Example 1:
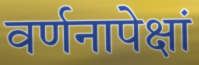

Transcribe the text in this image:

वर्णनापेक्षां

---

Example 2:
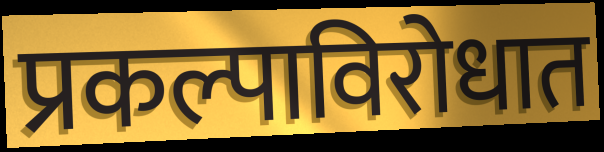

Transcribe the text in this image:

प्रकल्पाविरोधात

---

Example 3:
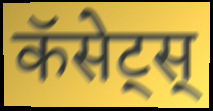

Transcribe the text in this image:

कॅसेट्स्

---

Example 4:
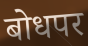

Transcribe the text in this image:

बोधपर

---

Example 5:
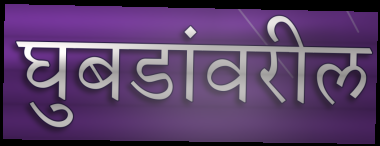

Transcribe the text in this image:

घुबडांवरील